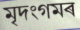
মৃদংগমৰ